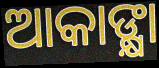
ଆକାଙ୍କ୍ଷା